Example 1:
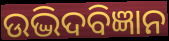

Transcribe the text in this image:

ଉଦ୍ଭିଦବିଜ୍ଞାନ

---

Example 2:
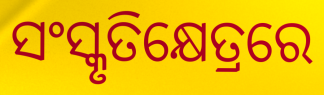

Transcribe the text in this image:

ସଂସ୍କୃତିକ୍ଷେତ୍ରରେ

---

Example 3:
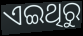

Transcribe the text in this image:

ଏଇଥିରୁ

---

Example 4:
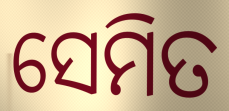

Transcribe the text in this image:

ସେମିତ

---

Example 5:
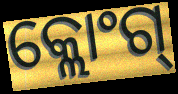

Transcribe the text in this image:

କ୍ଲୋଂଗ୍